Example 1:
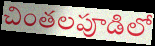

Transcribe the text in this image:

చింతలపూడిలో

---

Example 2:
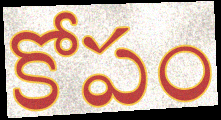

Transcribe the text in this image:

కోపం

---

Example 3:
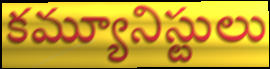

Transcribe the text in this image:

కమ్యూనిస్టులు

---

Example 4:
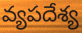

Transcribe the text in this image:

వ్యపదేశ్య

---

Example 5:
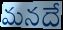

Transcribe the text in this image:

మనదే